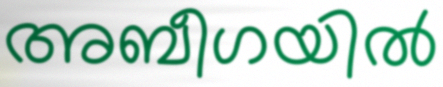
അബീഗയിൽ